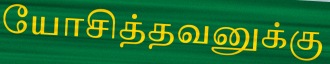
யோசித்தவனுக்கு